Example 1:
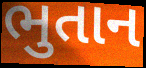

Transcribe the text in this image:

ભુતાન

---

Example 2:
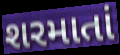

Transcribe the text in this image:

શરમાતાં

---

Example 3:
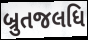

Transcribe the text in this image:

બ્રુતજલધિ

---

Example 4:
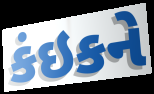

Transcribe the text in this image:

કંઇકને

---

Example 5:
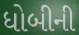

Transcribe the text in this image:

ધોબીની